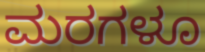
ಮರಗಳೂ